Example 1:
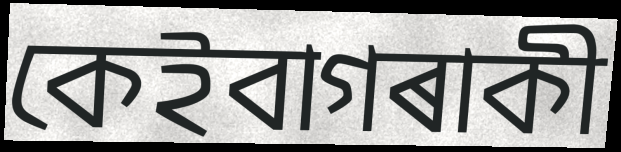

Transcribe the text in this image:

কেইবাগৰাকী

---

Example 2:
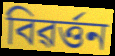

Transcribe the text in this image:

বিৱৰ্ত্তন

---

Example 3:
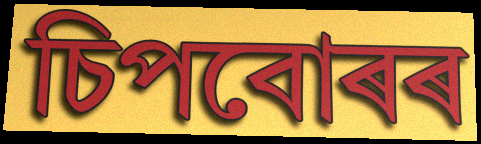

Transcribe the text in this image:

চিপবোৰৰ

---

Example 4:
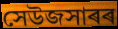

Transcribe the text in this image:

সেউজসাৰৰ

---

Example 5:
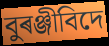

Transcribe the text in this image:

বুৰঞ্জীবিদে